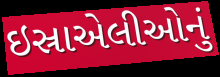
ઇસ્રાએલીઓનું